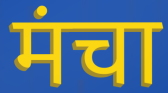
मंचा